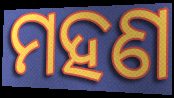
ମହଣ